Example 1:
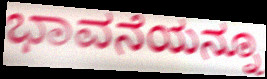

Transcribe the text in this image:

ಭಾವನೆಯನ್ನೂ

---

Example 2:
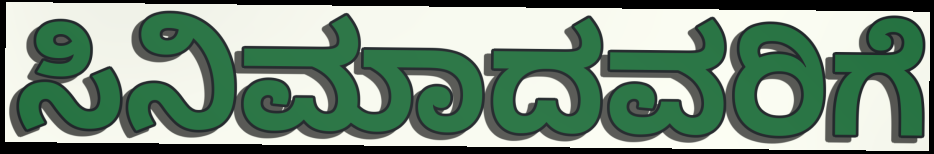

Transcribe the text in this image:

ಸಿನಿಮಾದವರಿಗೆ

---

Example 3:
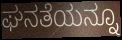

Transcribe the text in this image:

ಘನತೆಯನ್ನೂ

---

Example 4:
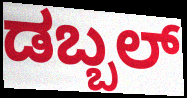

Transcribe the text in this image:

ಡಬ್ಬಲ್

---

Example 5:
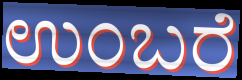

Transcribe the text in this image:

ಉಂಬರೆ